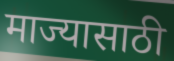
माज्यासाठी